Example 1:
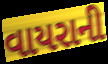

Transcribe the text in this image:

વાયરાની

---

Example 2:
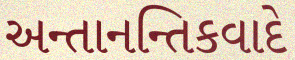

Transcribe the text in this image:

અન્તાનન્તિકવાદે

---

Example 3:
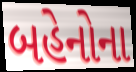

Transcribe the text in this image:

બહેનોના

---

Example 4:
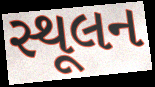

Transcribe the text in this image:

સ્થૂલન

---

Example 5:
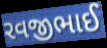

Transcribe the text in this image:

રવજીભાઈ